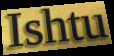
Ishtu